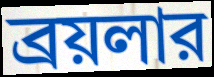
ব্রয়লার